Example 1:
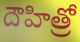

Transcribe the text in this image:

దౌహిత్రో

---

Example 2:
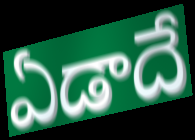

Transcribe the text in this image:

ఏడాదే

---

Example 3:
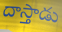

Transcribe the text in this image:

దాస్తాడు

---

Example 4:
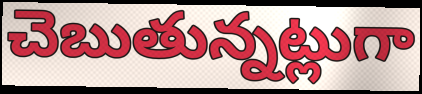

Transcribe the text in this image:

చెబుతున్నట్లుగా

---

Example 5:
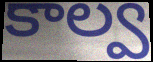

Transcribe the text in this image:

కాల్వ